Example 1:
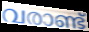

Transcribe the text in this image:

വരാണ്ട്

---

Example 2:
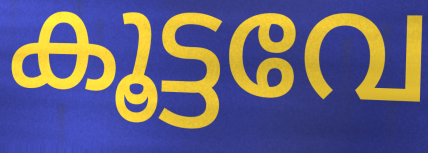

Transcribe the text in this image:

കൂട്ടവേ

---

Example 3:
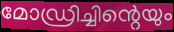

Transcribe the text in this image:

മോഡ്രിച്ചിന്റെയും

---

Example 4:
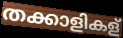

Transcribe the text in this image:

തക്കാളികള്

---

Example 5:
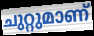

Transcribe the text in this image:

ചുറ്റുമാണ്